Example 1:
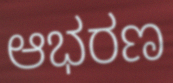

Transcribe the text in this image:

ಆಭರಣ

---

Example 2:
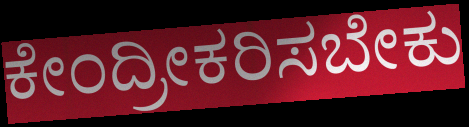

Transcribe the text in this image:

ಕೇಂದ್ರೀಕರಿಸಬೇಕು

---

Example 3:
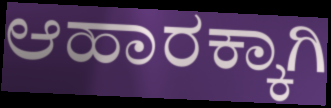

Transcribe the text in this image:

ಆಹಾರಕ್ಕಾಗಿ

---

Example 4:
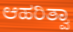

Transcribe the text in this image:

ಆಹರಿತ್ವಾ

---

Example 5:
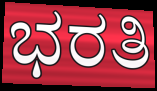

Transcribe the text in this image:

ಭರತಿ